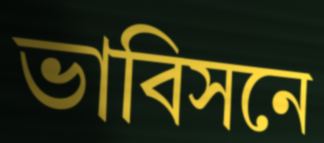
ভাবিসনে